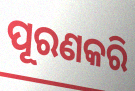
ପୂରଣକରି